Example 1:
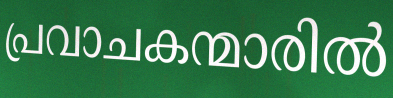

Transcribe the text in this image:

പ്രവാചകന്മാരിൽ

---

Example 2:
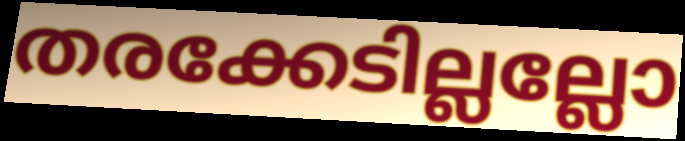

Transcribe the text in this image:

തരക്കേടില്ലല്ലോ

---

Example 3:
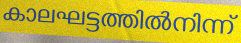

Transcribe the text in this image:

കാലഘട്ടത്തിൽനിന്ന്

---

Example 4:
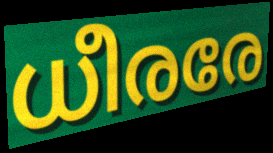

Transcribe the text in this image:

ധീരരേ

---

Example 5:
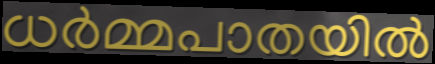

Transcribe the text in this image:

ധർമ്മപാതയിൽ